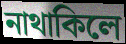
নাথাকিলে